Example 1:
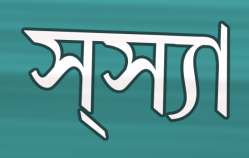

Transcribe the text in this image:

স্স্যা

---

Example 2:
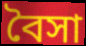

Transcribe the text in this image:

বৈসা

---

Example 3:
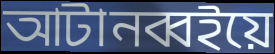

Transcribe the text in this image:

আটানব্বইয়ে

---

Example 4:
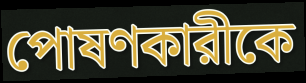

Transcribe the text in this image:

পোষণকারীকে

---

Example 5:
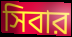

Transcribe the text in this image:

সিবার